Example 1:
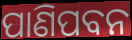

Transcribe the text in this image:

ପାଣିପବନ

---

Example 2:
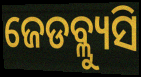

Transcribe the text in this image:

ଜେଡବ୍ଲ୍ୟୁସି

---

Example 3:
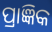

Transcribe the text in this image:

ପ୍ରାଜ୍ଞିକ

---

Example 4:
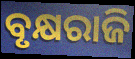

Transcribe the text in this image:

ବୃକ୍ଷରାଜି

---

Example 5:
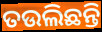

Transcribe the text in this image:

ତଉଲିଛନ୍ତି